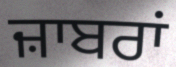
ਜ਼ਾਬਰਾਂ